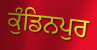
ਕੁੰਡਿਨਪੁਰ